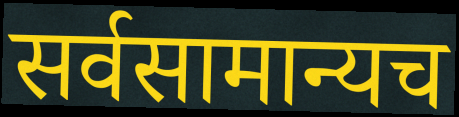
सर्वसामान्यच